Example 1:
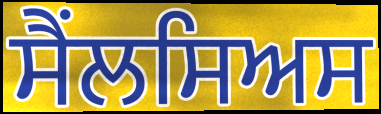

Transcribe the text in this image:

ਸੈਂਲਸਿਅਸ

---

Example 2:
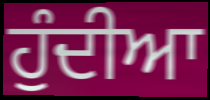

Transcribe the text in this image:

ਹੁੰਦੀਆ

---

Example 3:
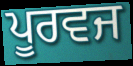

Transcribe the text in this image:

ਪੂਰਵਜ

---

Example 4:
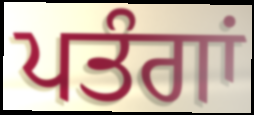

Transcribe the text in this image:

ਪਤੰਗਾਂ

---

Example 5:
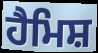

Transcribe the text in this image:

ਹੈਮਿਸ਼